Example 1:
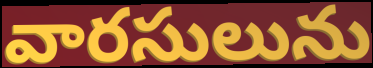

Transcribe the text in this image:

వారసులును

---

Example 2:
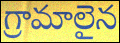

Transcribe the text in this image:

గ్రామాలైన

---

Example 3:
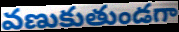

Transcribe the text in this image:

వణుకుతుండగా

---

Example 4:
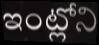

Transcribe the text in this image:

ఇంట్లోని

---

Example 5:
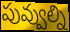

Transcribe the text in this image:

పువ్వుల్ని